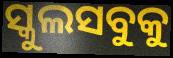
ସ୍କୁଲସବୁକୁ